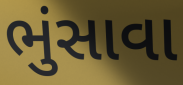
ભુંસાવા